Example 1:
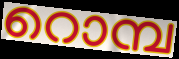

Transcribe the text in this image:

റൊമ്പ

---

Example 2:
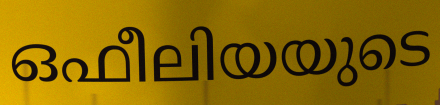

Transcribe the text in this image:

ഒഫീലിയയുടെ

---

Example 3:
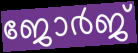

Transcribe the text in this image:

ജോർജ്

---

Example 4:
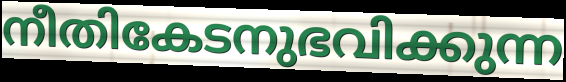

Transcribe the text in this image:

നീതികേടനുഭവിക്കുന്ന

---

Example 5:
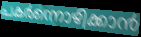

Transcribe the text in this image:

പകർന്നൊഴിക്കാൻ